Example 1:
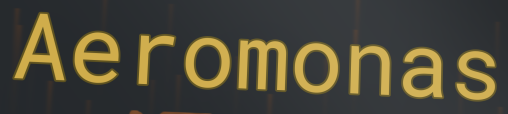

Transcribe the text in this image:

Aeromonas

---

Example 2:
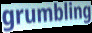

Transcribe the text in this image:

grumbling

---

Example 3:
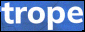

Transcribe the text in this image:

trope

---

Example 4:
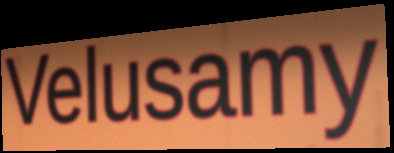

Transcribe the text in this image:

Velusamy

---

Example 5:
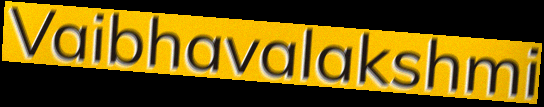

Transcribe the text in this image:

Vaibhavalakshmi